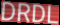
DRDL